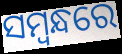
ସମ୍ବନ୍ଧରେ